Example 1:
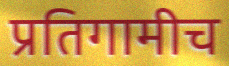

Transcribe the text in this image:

प्रतिगामीच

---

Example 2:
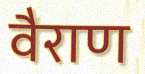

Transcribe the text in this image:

वैराण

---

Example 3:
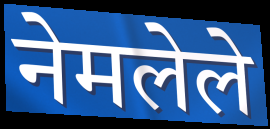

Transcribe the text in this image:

नेमलेले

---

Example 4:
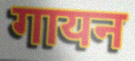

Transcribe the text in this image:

गायन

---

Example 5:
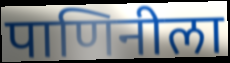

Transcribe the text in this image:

पाणिनीला